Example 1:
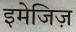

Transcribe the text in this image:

इमेजिज़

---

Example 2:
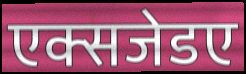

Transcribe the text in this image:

एक्सजेडए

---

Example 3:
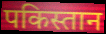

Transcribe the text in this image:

पकिस्तान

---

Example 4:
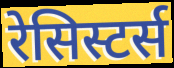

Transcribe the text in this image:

रेसिस्टर्स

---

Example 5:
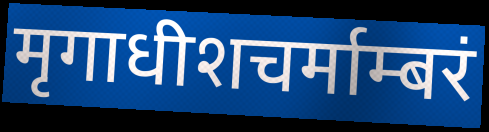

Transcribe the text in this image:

मृगाधीशचर्माम्बरं